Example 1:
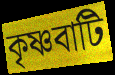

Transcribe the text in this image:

কৃষ্ণবাটি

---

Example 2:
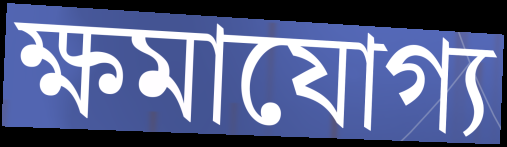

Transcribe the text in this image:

ক্ষমাযোগ্য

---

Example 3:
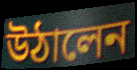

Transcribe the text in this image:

উঠালেন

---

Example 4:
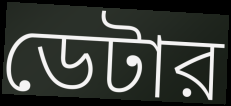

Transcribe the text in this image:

ডেটার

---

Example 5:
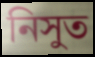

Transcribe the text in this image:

নিসুত